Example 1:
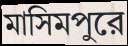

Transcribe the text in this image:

মাসিমপুরে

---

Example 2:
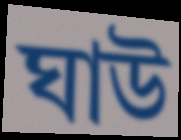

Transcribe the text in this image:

ঘাউ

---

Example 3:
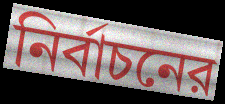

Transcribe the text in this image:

নির্বাচনের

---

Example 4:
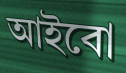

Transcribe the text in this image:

আইবো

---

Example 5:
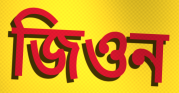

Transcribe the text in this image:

জিওন